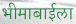
भीमाबाईला